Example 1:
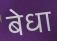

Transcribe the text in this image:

बेधा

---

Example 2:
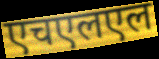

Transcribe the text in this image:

एचएलएल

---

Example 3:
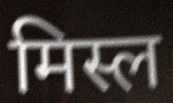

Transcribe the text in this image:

मिस्ल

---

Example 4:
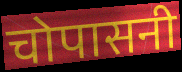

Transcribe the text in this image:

चोपासनी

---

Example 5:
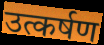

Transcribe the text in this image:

उत्कर्षण